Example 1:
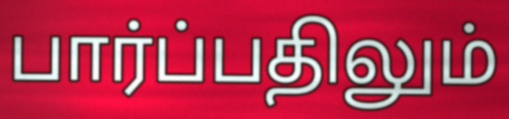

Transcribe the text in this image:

பார்ப்பதிலும்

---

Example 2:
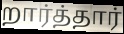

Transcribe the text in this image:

றார்த்தார்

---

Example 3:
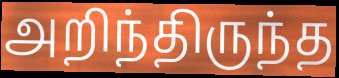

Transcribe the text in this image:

அறிந்திருந்த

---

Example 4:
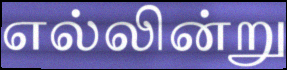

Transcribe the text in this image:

எல்லின்று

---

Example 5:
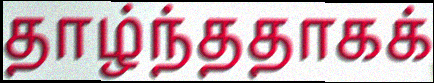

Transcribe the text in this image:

தாழ்ந்ததாகக்